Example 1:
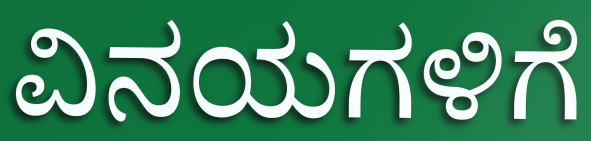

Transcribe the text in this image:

ವಿನಯಗಳಿಗೆ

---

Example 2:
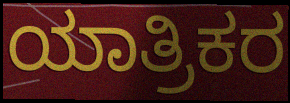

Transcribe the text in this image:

ಯಾತ್ರಿಕರ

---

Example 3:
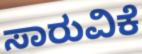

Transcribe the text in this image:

ಸಾರುವಿಕೆ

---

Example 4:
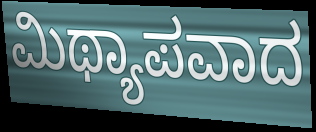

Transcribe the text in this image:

ಮಿಥ್ಯಾಪವಾದ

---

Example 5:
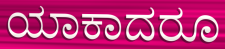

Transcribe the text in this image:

ಯಾಕಾದರೂ